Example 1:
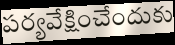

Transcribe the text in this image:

పర్యవేక్షించేందుకు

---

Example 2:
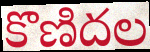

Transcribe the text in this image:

కొణిదల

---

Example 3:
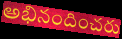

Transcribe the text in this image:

అభినందించరు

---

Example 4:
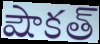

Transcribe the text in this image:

షౌకత్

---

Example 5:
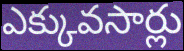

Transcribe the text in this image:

ఎక్కువసార్లు